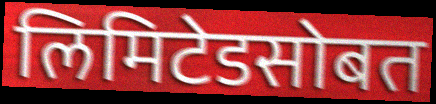
लिमिटेडसोबत